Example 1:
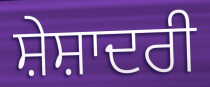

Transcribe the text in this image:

ਸ਼ੇਸ਼ਾਦਰੀ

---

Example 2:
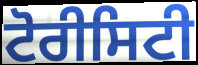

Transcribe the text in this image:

ਟੋਰੀਸਿਟੀ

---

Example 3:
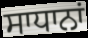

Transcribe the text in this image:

ਸਾਧਾਨਾਂ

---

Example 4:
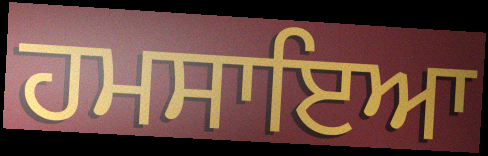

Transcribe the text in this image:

ਹਮਸਾਇਆ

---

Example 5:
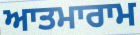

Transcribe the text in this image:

ਆਤਮਾਰਾਮ